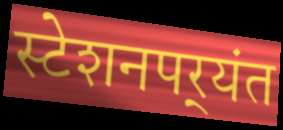
स्टेशनपर्यंत